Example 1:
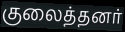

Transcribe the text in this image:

குலைத்தனர்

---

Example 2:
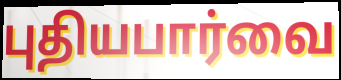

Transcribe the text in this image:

புதியபார்வை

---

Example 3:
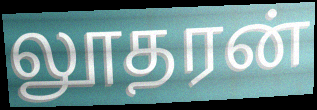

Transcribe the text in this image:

லூதரன்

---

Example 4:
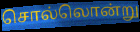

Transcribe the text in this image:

சொல்லொன்று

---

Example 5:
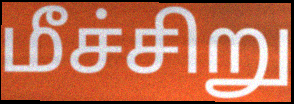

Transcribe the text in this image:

மீச்சிறு